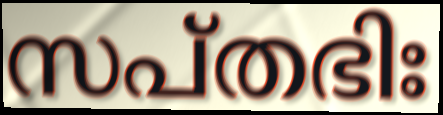
സപ്തഭിഃ